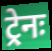
ट्रेनः